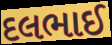
દલભાઈ